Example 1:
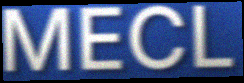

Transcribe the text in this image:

MECL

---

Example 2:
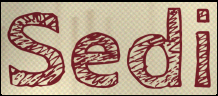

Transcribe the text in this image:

Sedi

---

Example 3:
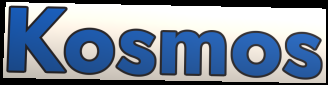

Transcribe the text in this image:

Kosmos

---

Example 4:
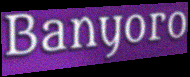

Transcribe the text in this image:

Banyoro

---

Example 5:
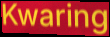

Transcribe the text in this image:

Kwaring